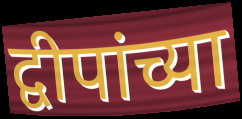
द्वीपांच्या